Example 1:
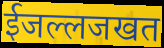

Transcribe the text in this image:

ईजल्लजखत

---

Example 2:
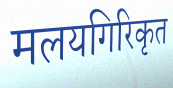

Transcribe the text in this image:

मलयगिरिकृत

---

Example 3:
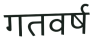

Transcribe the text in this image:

गतवर्ष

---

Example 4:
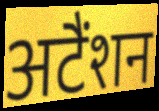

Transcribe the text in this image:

अटैंशन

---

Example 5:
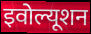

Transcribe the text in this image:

इवोल्यूशन